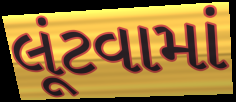
લૂંટવામાં